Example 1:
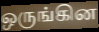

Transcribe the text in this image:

ஒருங்கின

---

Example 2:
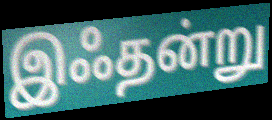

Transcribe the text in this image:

இஃதன்று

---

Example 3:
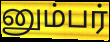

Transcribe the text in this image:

னும்பர்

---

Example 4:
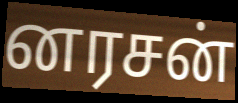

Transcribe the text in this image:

னரசன்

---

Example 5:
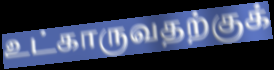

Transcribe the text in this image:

உட்காருவதற்குக்